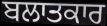
ਬਲਾਤਕਾਰ